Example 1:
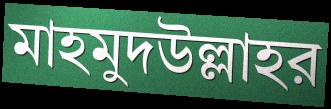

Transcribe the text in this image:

মাহমুদউল্লাহর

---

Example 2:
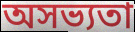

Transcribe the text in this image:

অসভ্যতা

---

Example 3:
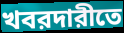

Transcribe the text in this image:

খবরদারীতে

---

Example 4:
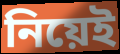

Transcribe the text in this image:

নিয়েই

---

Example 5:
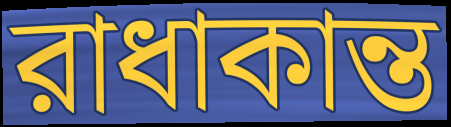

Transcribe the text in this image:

রাধাকান্ত